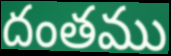
దంతము